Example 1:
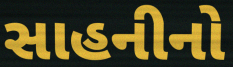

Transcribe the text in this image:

સાહનીનો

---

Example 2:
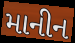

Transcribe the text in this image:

માનીન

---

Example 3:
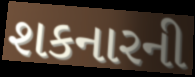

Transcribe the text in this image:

શકનારની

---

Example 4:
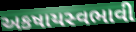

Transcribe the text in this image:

અકષાયસ્વભાવી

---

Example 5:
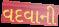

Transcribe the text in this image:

વદવાની